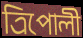
ত্রিপোলী